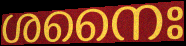
ശനൈഃ